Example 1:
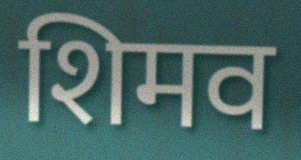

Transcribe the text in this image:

शिमव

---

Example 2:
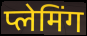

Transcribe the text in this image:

प्लेमिंग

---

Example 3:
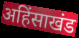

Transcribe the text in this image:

अहिंसाखंड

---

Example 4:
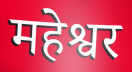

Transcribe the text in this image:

महेश्वर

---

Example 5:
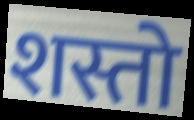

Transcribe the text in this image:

शस्तो